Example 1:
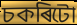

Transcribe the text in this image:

চকৰিটো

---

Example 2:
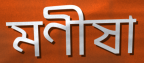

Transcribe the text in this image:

মণীষা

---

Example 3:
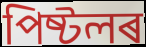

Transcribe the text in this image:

পিষ্টলৰ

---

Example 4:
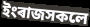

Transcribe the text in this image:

ইংৰাজসকলে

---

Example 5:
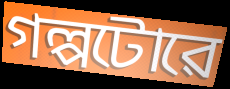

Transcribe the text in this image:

গল্পটোৱে